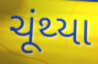
ચૂંથ્યા